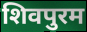
शिवपुरम